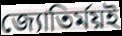
জ্যোতির্ময়ই